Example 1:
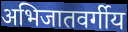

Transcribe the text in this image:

अभिजातवर्गीय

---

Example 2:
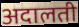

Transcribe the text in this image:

अदालती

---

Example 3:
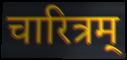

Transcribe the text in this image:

चारित्रम्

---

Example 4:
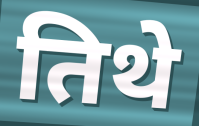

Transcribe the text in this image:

तिथे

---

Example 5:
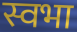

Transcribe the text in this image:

स्वभा